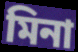
মিনা